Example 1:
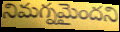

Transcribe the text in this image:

నిమగ్నమైందని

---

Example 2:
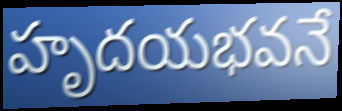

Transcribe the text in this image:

హృదయభవనే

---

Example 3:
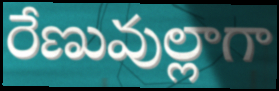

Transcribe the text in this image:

రేణువుల్లాగా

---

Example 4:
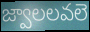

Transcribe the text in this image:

జ్వాలలవలె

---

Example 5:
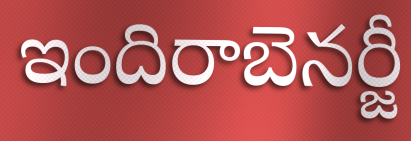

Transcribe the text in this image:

ఇందిరాబెనర్జీ